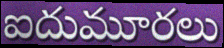
ఐదుమూరలు